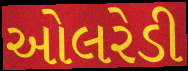
ઓલરેડી